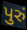
પુરું